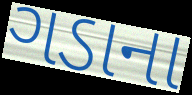
ગડાના